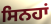
ਸਿਨਹਾਂ